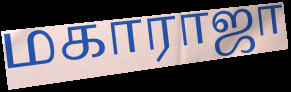
மகாராஜா